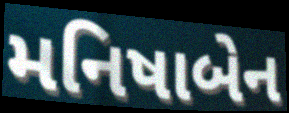
મનિષાબેન